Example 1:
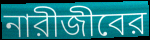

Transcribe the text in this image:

নারীজীবের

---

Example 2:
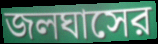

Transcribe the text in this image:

জলঘাসের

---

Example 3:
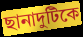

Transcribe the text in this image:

ছানাদুটিকে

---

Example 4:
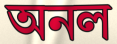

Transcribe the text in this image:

অনল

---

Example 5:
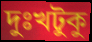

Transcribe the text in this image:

দুঃখটুকু